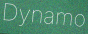
Dynamo